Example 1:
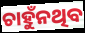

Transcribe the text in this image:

ଚାହୁଁନଥିବ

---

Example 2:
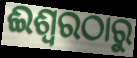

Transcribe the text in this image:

ଈଶ୍ୱରଠାରୁ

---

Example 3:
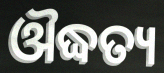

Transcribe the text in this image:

ଔଦ୍ଧତ୍ୟ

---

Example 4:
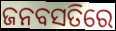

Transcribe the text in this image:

ଜନବସତିରେ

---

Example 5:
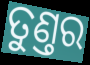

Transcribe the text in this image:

ତୁଣ୍ତର